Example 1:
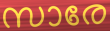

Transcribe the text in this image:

സാരേ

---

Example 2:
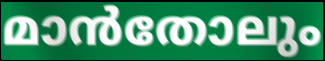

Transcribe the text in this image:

മാൻതോലും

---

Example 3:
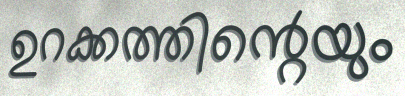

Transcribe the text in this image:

ഉറക്കത്തിന്റെയും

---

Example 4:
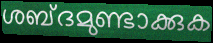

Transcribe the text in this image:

ശബ്ദമുണ്ടാക്കുക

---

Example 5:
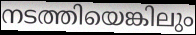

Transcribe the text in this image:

നടത്തിയെങ്കിലും